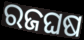
ରଜଘଷ